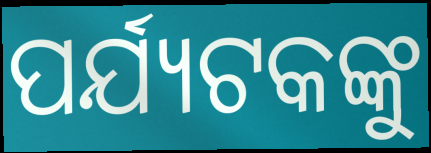
ପର୍ଯ୍ୟଟକଙ୍କୁ